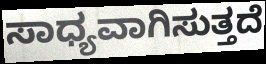
ಸಾಧ್ಯವಾಗಿಸುತ್ತದೆ